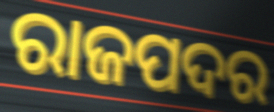
ରାଜପଦର